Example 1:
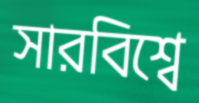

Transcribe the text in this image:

সারবিশ্বে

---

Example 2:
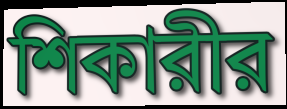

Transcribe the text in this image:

শিকারীর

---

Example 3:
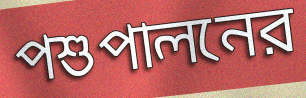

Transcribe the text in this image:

পশুপালনের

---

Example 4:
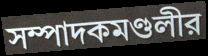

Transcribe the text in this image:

সম্পাদকমণ্ডলীর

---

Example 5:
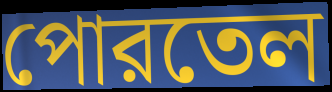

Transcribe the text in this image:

পোরতেল